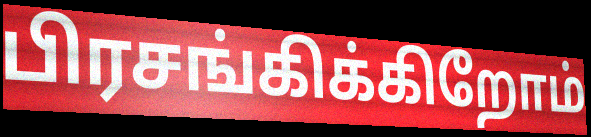
பிரசங்கிக்கிறோம்